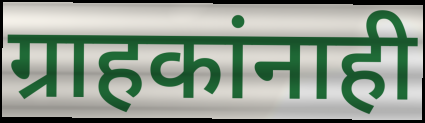
ग्राहकांनाही